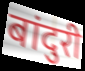
बांदुरी